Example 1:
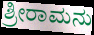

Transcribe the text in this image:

ಶ್ರೀರಾಮನು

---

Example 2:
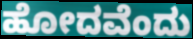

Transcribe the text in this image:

ಹೋದವೆಂದು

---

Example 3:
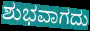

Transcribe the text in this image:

ಶುಭವಾಗದು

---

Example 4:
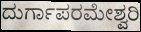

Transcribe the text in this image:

ದುರ್ಗಾಪರಮೇಶ್ವರಿ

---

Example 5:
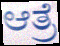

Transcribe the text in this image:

ಆತ್ರೆ